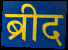
ब्रीद